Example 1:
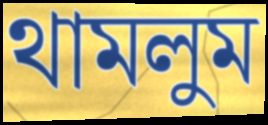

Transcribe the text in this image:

থামলুম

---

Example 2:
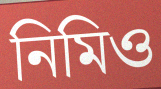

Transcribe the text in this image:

নিমিও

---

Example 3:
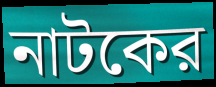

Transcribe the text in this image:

নাটকের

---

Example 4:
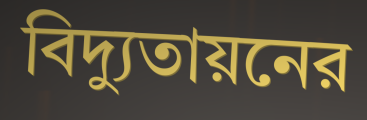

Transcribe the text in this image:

বিদ্যুতায়নের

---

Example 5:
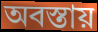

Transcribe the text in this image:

অবস্তায়